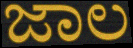
ಜಾಲ